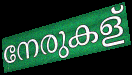
നേരുകള്